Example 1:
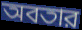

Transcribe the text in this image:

অবতার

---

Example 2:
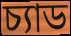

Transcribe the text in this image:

চ্যাড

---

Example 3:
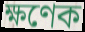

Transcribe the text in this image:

ক্ষণেক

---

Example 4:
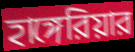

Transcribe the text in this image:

হাঙ্গেরিয়ার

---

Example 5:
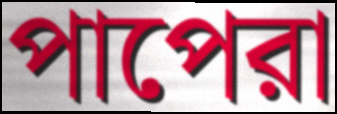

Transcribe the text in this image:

পাপেরা